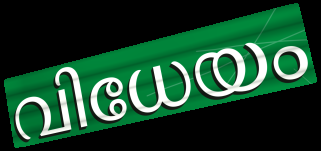
വിധേയം